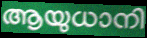
ആയുധാനി